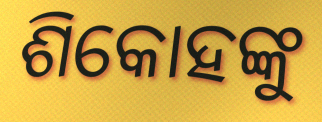
ଶିକୋହଙ୍କୁ